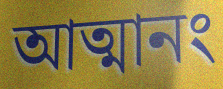
আত্মানং